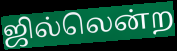
ஜில்லென்ற